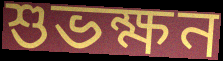
শুভক্ষন